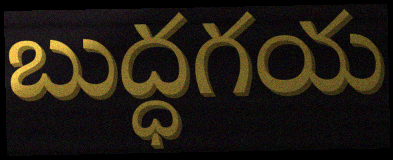
బుద్ధగయ